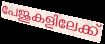
പേജുകളിലേക്ക്